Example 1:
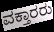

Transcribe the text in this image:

ವಕ್ತಾರರು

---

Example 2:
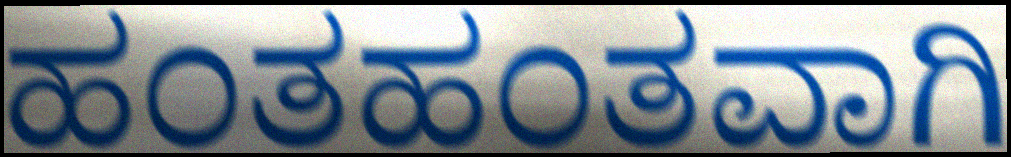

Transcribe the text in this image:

ಹಂತಹಂತವಾಗಿ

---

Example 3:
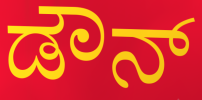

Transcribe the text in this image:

ಡೌನ್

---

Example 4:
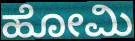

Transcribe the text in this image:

ಹೋಮಿ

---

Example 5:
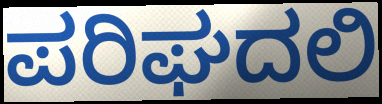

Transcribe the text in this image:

ಪರಿಘದಲಿ